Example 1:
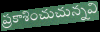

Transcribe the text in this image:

ప్రకాశించుచున్నవి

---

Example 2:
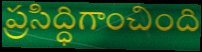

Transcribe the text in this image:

ప్రసిద్ధిగాంచింది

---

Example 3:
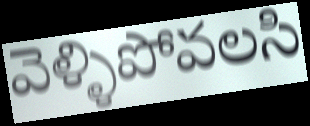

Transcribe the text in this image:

వెళ్ళిపోవలసి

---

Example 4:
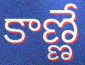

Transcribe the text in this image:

కాణ్ణే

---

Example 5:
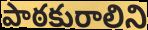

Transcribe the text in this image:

పాఠకురాలిని